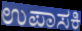
ಉಪಾಸಕಿ